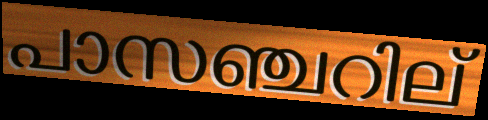
പാസഞ്ചറില്